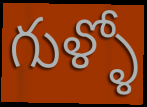
గుళ్ళో